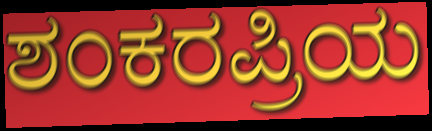
ಶಂಕರಪ್ರಿಯ